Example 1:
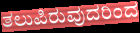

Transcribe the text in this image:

ತಲುಪಿರುವುದರಿಂದ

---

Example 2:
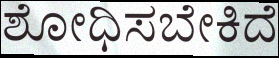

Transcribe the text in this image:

ಶೋಧಿಸಬೇಕಿದೆ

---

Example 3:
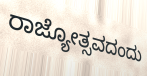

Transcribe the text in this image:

ರಾಜ್ಯೋತ್ಸವದಂದು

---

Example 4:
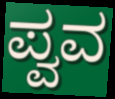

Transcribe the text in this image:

ಪ್ವವ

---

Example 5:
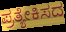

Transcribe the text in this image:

ಪ್ರತ್ಯೇಕಿಸದ